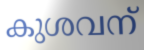
കുശവന്